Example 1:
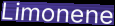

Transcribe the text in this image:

Limonene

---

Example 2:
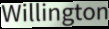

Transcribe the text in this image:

Willington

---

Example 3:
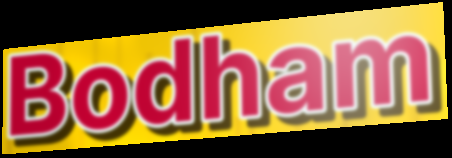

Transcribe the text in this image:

Bodham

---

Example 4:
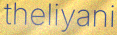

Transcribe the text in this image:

theliyani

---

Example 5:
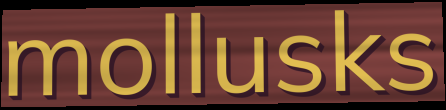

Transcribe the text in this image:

mollusks